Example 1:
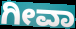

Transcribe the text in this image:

ಗೀವಾ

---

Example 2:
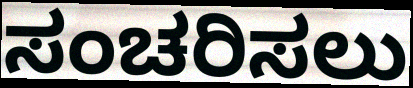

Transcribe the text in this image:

ಸಂಚರಿಸಲು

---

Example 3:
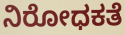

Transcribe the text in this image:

ನಿರೋಧಕತೆ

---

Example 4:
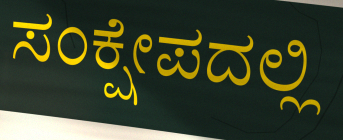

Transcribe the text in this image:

ಸಂಕ್ಷೇಪದಲ್ಲಿ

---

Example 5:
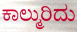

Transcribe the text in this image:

ಕಾಲ್ಮುರಿದು